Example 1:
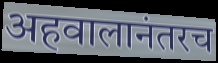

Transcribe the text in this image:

अहवालानंतरच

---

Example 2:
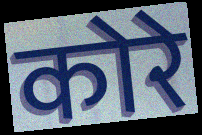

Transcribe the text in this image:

कोरे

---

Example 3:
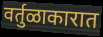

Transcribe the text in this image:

वर्तुळाकारात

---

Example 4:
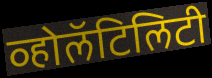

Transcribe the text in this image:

व्होलॅटिलिटी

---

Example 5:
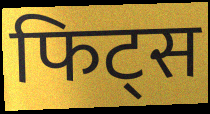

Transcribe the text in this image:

फिट्स